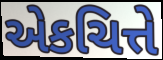
એકચિત્તે